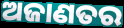
ଅଜାଣତର